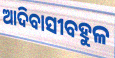
ଆଦିବାସୀବହୁଳ